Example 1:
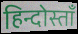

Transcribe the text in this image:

हिन्दोस्ताँ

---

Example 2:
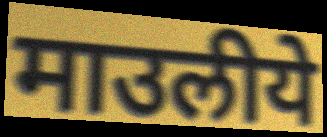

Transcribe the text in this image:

माउलीये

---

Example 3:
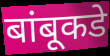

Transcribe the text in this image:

बांबूकडे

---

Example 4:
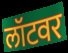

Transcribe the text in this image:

लॉटवर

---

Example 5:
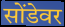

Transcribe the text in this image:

सोंडेवर